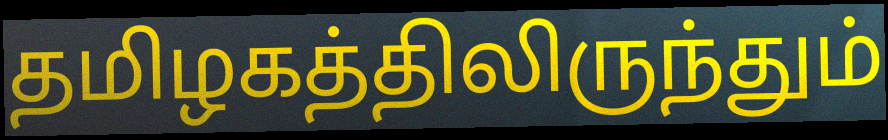
தமிழகத்திலிருந்தும்